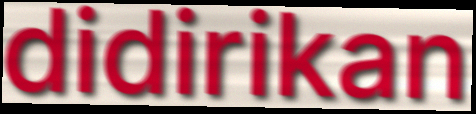
didirikan